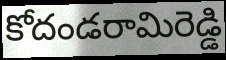
కోదండరామిరెడ్డి